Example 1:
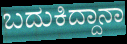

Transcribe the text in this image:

ಬದುಕಿದ್ದಾನಾ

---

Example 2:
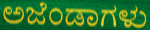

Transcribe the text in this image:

ಅಜೆಂಡಾಗಳು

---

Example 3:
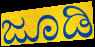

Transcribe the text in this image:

ಜೂಡಿ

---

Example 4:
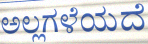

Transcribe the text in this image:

ಅಲ್ಲಗಳೆಯದೆ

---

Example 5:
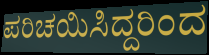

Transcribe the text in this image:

ಪರಿಚಯಿಸಿದ್ದರಿಂದ